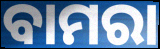
ବାମରା